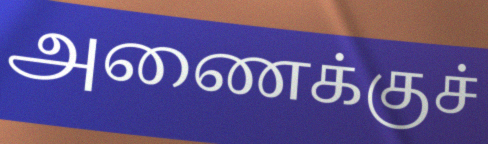
அணைக்குச்